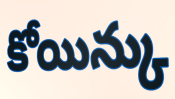
కోయిన్కు